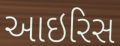
આઇરિસ